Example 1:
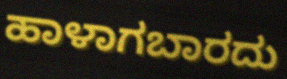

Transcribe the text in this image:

ಹಾಳಾಗಬಾರದು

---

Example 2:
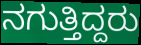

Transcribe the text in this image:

ನಗುತ್ತಿದ್ದರು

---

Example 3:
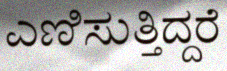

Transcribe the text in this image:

ಎಣಿಸುತ್ತಿದ್ದರೆ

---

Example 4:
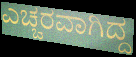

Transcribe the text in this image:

ಎಚ್ಚರವಾಗಿದ್ದ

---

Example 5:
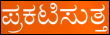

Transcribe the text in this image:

ಪ್ರಕಟಿಸುತ್ತ